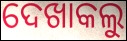
ଦେଖାକଲୁ